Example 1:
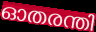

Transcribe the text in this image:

ഓതരന്തി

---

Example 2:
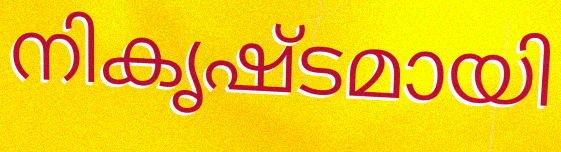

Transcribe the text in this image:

നികൃഷ്ടമായി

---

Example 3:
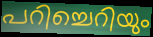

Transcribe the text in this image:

പറിച്ചെറിയും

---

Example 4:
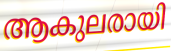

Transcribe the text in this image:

ആകുലരായി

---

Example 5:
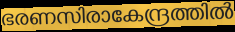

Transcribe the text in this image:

ഭരണസിരാകേന്ദ്രത്തിൽ